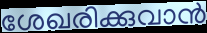
ശേഖരിക്കുവാൻ